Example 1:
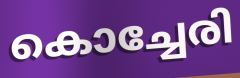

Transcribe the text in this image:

കൊച്ചേരി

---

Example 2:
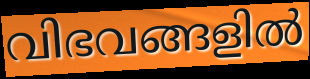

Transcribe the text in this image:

വിഭവങ്ങളിൽ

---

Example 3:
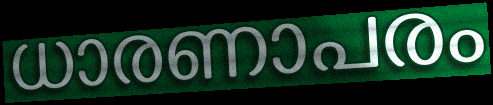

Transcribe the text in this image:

ധാരണാപരം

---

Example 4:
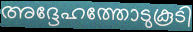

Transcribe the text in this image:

അദ്ദേഹത്തോടുകൂടി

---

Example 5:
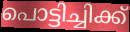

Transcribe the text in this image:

പൊട്ടിച്ചിക്ക്